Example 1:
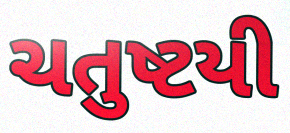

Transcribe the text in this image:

ચતુષ્ટયી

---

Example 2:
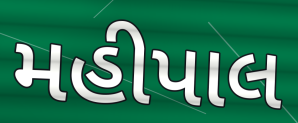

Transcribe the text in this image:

મહીપાલ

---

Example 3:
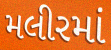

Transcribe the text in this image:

મલીરમાં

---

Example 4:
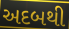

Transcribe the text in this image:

અદબથી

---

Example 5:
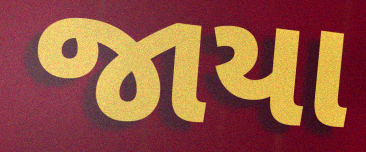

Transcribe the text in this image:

જાયા